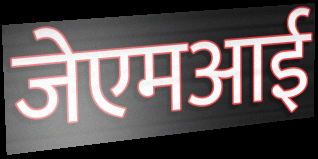
जेएमआई